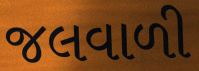
જલવાળી